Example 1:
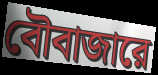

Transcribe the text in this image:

বৌবাজারে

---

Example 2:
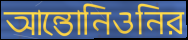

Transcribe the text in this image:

আন্তোনিওনির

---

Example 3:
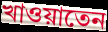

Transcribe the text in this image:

খাওয়াতেন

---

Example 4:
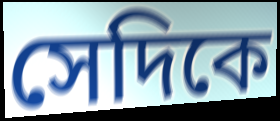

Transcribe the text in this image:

সেদিকে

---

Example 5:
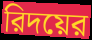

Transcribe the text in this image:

রিদয়ের